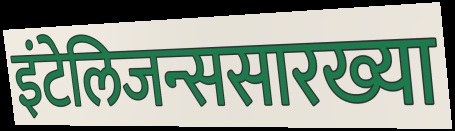
इंटेलिजन्ससारख्या